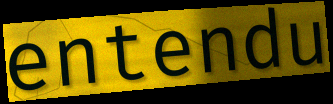
entendu